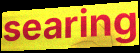
searing